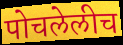
पोचलेलीच